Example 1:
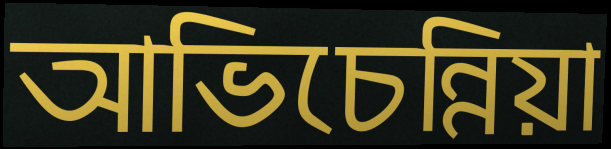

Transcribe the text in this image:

আভিচেন্নিয়া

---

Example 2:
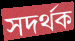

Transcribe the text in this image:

সদৰ্থক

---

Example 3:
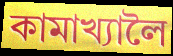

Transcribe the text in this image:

কামাখ্যালৈ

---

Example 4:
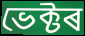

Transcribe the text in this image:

ভেক্টৰ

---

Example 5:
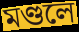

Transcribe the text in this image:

মণ্ডলে